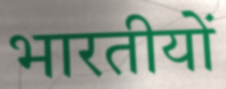
भारतीयों